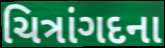
ચિત્રાંગદના